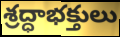
శ్రద్ధాభక్తులు